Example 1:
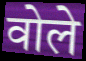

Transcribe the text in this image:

वोले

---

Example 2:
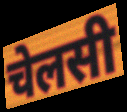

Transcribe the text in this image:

चेलसी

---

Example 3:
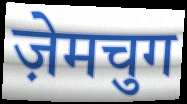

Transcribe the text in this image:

ज़ेमचुग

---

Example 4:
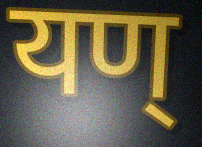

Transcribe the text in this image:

यण्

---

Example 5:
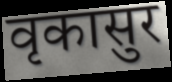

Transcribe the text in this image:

वृकासुर